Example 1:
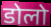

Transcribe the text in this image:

डोलो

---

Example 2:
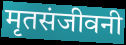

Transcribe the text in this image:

मृतसंजीवनी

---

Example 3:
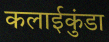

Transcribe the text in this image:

कलाईकुंडा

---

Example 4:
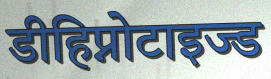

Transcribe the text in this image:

डीहिप्नोटाइज्ड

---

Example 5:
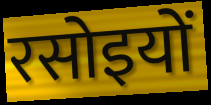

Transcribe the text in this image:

रसोइयों